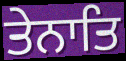
ਤੇਨਾਤਿ